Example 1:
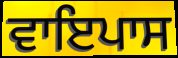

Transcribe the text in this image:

ਵਾਇਪਾਸ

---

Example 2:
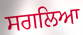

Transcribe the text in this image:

ਸਗਲਿਆ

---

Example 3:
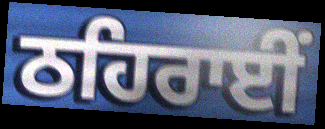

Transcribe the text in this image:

ਠਹਿਰਾਈਂ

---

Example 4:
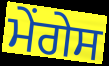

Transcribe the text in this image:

ਮੇਂਗੇਸ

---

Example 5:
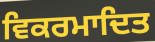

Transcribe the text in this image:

ਵਿਕਰਮਾਦਿਤ